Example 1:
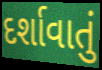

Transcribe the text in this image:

દર્શાવાતું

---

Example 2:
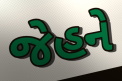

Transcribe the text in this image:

જેહને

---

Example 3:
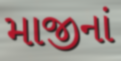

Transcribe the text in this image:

માજીનાં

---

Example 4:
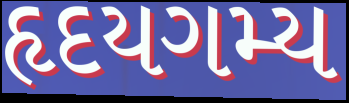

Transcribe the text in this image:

હૃદયગમ્ય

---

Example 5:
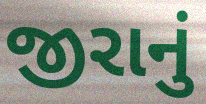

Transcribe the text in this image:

જીરાનું